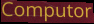
Computor